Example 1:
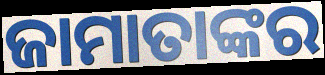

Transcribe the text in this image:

ଜାମାତାଙ୍କର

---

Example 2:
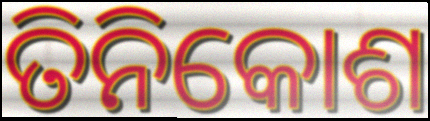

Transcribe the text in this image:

ତିନିକୋଶ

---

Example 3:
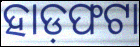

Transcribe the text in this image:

ହାଡ଼ଫଟା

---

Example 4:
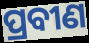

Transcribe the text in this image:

ପ୍ରବୀଣ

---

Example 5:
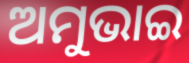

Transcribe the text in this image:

ଅମୁଭାଇ